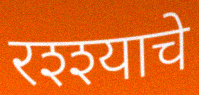
रश्श्याचे